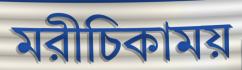
মরীচিকাময়